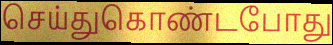
செய்துகொண்டபோது